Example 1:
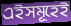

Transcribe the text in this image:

এইসমূহেই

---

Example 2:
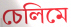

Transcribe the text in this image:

চেলিমে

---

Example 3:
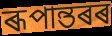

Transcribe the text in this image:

ৰূপান্তৰৰ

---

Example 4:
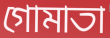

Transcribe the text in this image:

গোমাতা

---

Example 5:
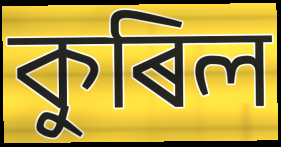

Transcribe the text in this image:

কুৰিল